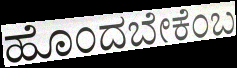
ಹೊಂದಬೇಕೆಂಬ